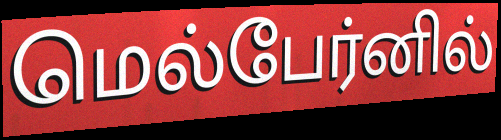
மெல்பேர்னில்